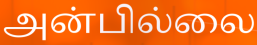
அன்பில்லை